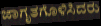
ಜಾಗೃತಗೊಳಿಸಿದರು